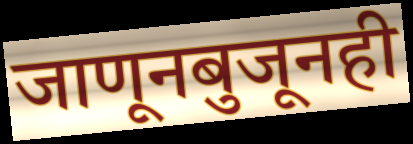
जाणूनबुजूनही